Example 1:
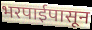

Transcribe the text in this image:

भरपाईपासून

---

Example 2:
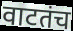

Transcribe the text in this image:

वाटतंच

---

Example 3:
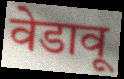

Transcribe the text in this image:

वेडावू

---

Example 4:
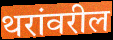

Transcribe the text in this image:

थरांवरील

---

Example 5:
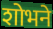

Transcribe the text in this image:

शोभने